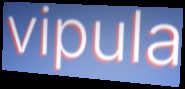
vipula